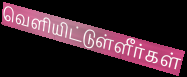
வெளியிட்டுள்ளீர்கள்